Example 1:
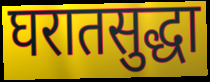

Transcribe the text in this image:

घरातसुद्धा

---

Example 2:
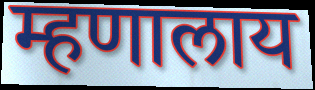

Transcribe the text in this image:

म्हणालाय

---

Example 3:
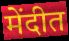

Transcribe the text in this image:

मेंदीत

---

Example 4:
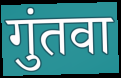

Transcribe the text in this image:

गुंतवा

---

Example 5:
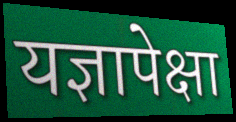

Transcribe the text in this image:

यज्ञापेक्षा